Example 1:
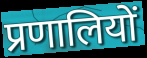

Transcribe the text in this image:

प्रणालियों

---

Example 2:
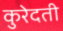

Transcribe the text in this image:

कुरेदती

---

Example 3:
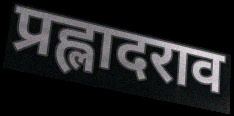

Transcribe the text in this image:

प्रह्लादराव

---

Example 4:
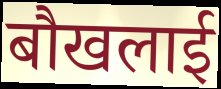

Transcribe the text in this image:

बौखलाई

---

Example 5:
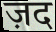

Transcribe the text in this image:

ज़द